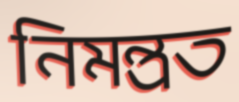
নিমন্ত্রত